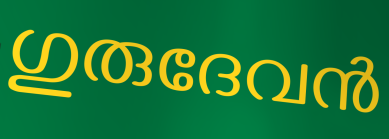
ഗുരുദേവൻ